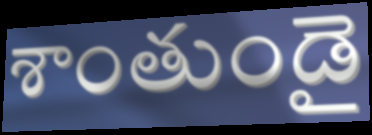
శాంతుండై